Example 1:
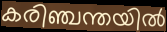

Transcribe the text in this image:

കരിഞ്ചന്തയിൽ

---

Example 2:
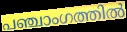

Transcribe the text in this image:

പഞ്ചാംഗത്തിൽ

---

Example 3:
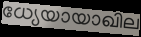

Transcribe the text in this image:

ധ്യേയായാഖില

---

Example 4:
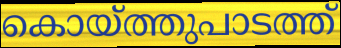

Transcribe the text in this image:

കൊയ്ത്തുപാടത്ത്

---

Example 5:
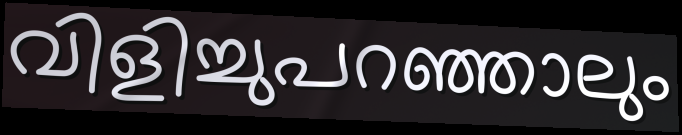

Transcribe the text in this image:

വിളിച്ചുപറഞ്ഞാലും